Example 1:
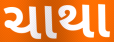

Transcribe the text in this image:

ચાથા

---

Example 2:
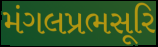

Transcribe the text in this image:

મંગલપ્રભસૂરિ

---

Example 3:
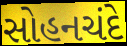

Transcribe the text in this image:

સોહનચંદે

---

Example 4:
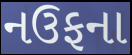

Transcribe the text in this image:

નઉફના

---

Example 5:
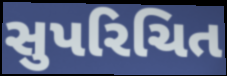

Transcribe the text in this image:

સુપરિચિત